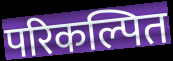
परिकल्पित